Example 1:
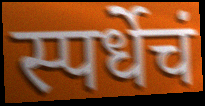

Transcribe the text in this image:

स्पर्धेचं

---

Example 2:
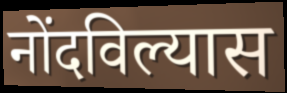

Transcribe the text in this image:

नोंदविल्यास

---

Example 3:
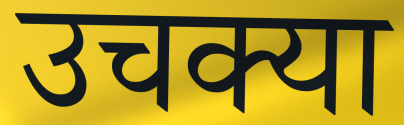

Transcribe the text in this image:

उचक्या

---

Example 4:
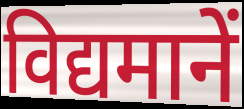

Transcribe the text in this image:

विद्यमानें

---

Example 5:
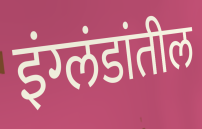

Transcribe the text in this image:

इंग्लंडांतील